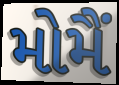
મોમૈં